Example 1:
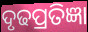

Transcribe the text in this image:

ଦୃଢପ୍ରତିଜ୍ଞା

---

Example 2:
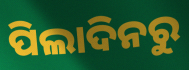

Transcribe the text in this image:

ପିଲାଦିନରୁ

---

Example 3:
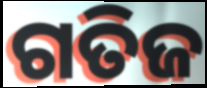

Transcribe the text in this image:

ଗତିଜ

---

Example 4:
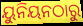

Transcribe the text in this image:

ୟୁନିୟନଠାରୁ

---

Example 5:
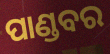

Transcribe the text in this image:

ପାଣ୍ଡବର